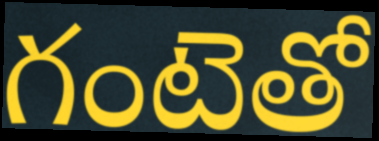
గంటెతో